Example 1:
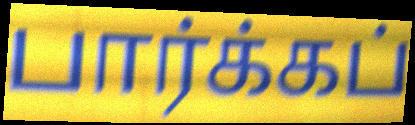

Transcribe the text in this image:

பார்க்கப்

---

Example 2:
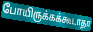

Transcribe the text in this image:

போயிருக்கக்கூடாதா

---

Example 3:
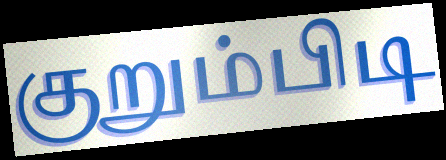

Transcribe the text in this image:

குறும்பிடி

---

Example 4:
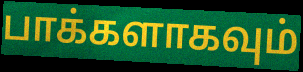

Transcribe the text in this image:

பாக்களாகவும்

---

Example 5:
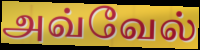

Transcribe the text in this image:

அவ்வேல்